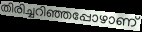
തിരിച്ചറിഞ്ഞപ്പോഴാണ്